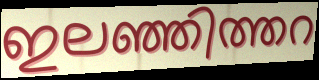
ഇലഞ്ഞിത്തറ